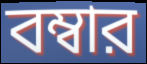
বম্বার